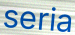
seria